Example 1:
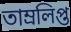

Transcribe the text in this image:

তাম্রলিপ্ত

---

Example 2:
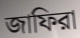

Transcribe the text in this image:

জাফিরা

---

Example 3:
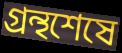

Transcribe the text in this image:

গ্রন্থশেষে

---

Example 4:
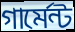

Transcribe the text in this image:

গার্মেন্ট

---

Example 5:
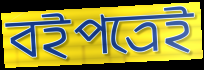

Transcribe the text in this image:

বইপত্রেই